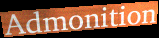
Admonition